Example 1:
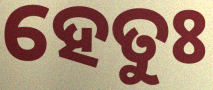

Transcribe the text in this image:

ହେତୁଃ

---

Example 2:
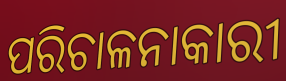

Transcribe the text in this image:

ପରିଚାଳନାକାରୀ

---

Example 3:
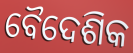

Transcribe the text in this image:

ବୈଦେଶିକ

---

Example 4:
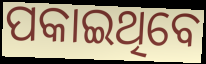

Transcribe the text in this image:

ପକାଇଥିବେ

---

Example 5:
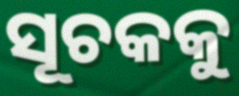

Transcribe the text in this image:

ସୂଚକକୁ